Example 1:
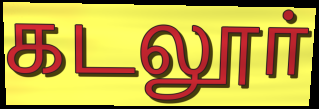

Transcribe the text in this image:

கடலூர்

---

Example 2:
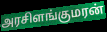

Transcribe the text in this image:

அரசிளங்குமரன்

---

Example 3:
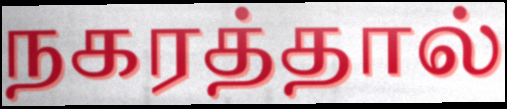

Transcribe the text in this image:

நகரத்தால்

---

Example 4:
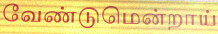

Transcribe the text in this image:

வேண்டுமென்றாய்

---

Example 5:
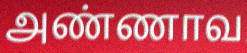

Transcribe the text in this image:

அண்ணாவ